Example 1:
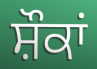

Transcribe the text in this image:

ਸ਼ੌਕਾਂ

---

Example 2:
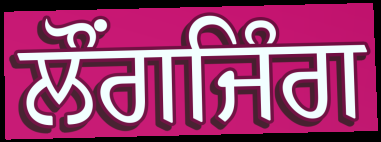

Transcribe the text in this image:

ਲੌਂਗਜਿੰਗ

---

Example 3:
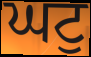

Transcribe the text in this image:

ਘਟੁ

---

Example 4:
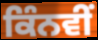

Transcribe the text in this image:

ਕਿੰਨਵੀਂ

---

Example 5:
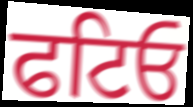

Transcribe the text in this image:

ਫਟਿਓ